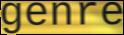
genre